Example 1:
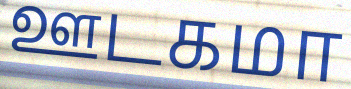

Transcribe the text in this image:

ஊடகமா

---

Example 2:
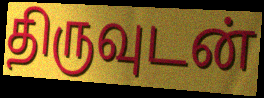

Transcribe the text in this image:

திருவுடன்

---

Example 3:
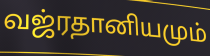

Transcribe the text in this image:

வஜ்ரதானியமும்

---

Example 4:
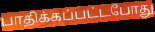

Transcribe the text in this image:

பாதிக்கப்பட்டபோது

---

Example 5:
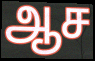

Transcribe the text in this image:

ஆச